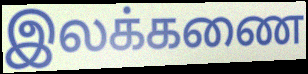
இலக்கணை